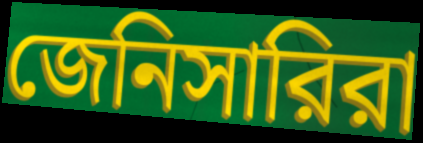
জেনিসারিরা